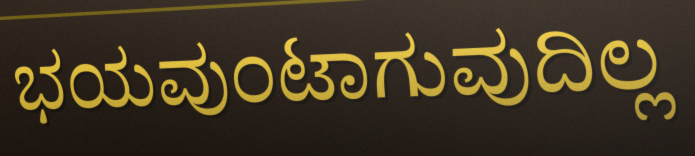
ಭಯವುಂಟಾಗುವುದಿಲ್ಲ